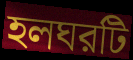
হলঘরটি